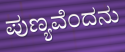
ಪುಣ್ಯವೆಂದನು